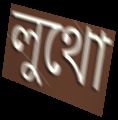
লুথো